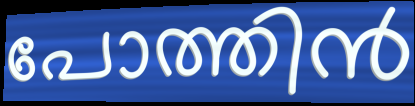
പോത്തിൻ